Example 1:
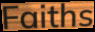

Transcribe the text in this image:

Faiths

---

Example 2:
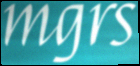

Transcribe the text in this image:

mgrs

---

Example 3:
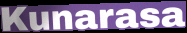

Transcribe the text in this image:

Kunarasa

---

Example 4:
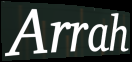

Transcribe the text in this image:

Arrah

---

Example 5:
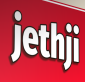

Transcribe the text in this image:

jethji